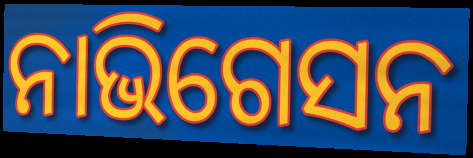
ନାଭିଗେସନ